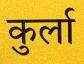
कुर्ला